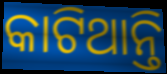
କାଟିଥାନ୍ତି